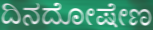
ದಿನದೋಷೇಣ